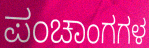
ಪಂಚಾಂಗಗಳ